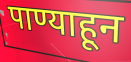
पाण्याहून